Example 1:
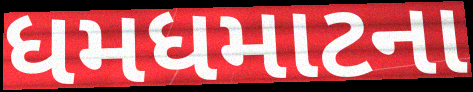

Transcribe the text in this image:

ધમધમાટના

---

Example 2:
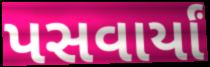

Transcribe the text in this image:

પસવાર્યાં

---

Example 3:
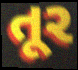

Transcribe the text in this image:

તૂર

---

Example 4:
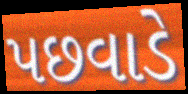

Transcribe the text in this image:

પછવાડે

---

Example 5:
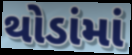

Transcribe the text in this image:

થોડાંમાં